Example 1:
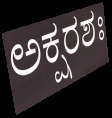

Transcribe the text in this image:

ಅಕ್ಷರಶಃ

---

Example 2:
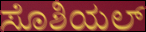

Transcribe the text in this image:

ಸೊಶಿಯಲ್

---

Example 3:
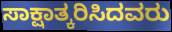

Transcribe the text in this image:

ಸಾಕ್ಷಾತ್ಕರಿಸಿದವರು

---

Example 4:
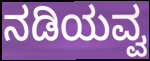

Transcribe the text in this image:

ನಡಿಯವ್ವ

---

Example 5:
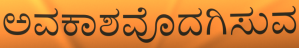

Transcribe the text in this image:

ಅವಕಾಶವೊದಗಿಸುವ